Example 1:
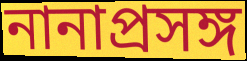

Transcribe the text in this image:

নানাপ্রসঙ্গ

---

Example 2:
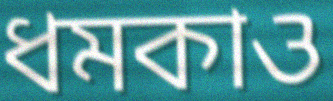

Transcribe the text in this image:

ধমকাও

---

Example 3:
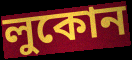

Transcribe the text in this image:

লুকোন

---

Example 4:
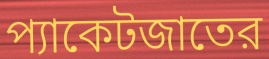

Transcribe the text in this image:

প্যাকেটজাতের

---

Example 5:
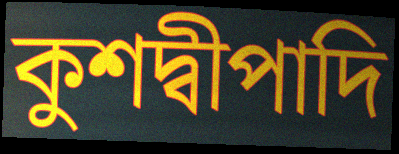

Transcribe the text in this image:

কুশদ্বীপাদি